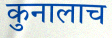
कुनालाच